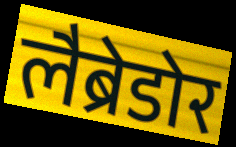
लैब्रेडोर